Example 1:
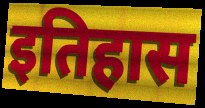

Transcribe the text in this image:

इतिहास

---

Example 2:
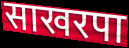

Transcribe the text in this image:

साखरपा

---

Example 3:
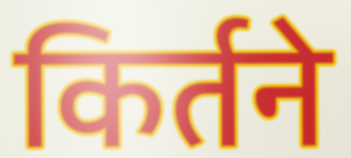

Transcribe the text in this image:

किर्तने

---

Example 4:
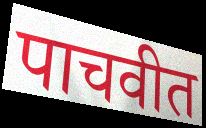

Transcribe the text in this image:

पाचवीत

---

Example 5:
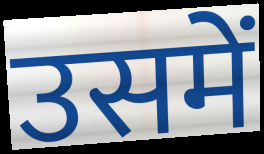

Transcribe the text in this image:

उसमें